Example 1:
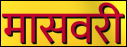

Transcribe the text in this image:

मासवरी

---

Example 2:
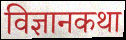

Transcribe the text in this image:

विज्ञानकथा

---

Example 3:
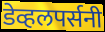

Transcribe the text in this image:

डेव्हलपर्सनी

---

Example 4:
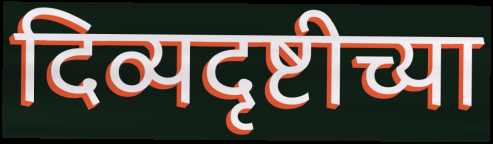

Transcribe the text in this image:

दिव्यदृष्टीच्या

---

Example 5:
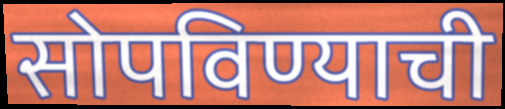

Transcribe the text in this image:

सोपविण्याची